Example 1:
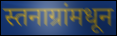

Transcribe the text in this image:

स्तनाग्रांमधून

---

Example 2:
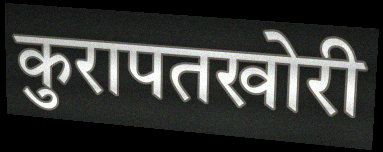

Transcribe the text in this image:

कुरापतखोरी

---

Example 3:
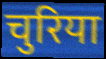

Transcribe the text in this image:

चुरिया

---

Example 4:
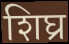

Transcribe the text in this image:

शिघ्र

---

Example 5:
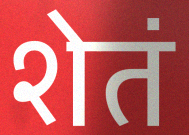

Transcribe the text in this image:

शेतं